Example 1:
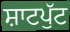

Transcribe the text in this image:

ਸ਼ਾਟਪੁੱਟ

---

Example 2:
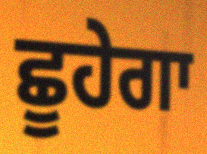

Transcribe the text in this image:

ਛੂਹੇਗਾ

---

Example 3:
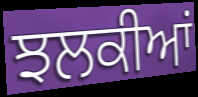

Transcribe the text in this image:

ਝਲਕੀਆਂ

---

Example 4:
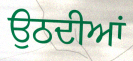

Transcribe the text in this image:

ਉਠਦੀਆਂ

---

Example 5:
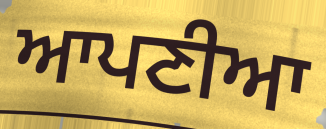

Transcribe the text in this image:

ਆਪਣੀਆ